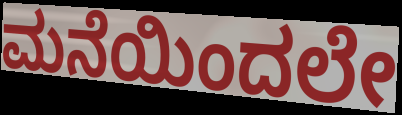
ಮನೆಯಿಂದಲೇ